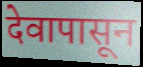
देवापासून